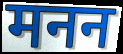
मनन